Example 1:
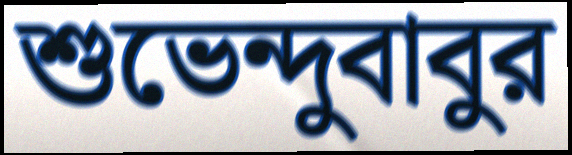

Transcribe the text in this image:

শুভেন্দুবাবুর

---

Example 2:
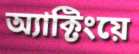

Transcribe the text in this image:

অ্যাক্টিংয়ে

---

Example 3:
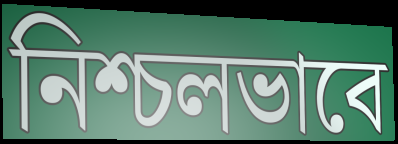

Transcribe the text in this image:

নিশ্চলভাবে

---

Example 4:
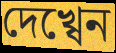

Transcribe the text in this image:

দেখ্বেন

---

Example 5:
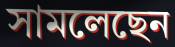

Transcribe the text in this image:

সামলেছেন